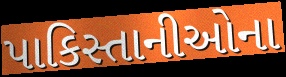
પાકિસ્તાનીઓના